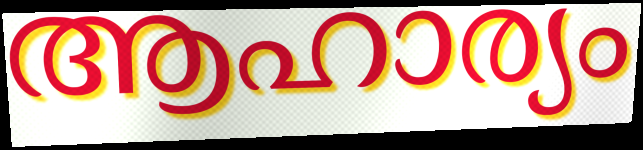
ആഹാര്യം